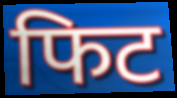
फिट